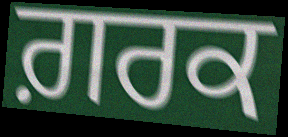
ਗ਼ਰਕ